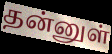
தன்னுள்